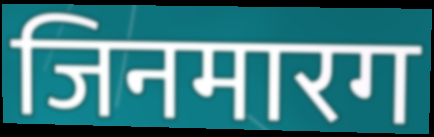
जिनमारग